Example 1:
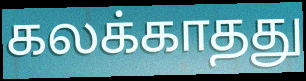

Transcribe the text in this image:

கலக்காதது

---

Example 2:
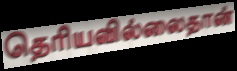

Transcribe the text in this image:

தெரியவில்லைதான்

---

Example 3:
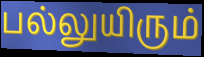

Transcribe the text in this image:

பல்லுயிரும்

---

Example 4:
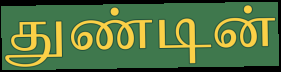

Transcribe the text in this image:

துண்டின்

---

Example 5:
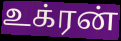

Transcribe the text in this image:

உக்ரன்